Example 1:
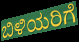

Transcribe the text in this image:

ಬಿಳಿಯರಿಗೆ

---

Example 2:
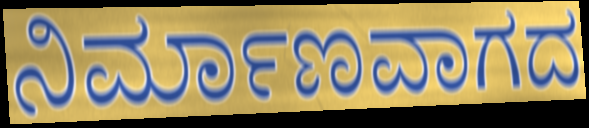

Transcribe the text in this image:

ನಿರ್ಮಾಣವಾಗದ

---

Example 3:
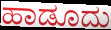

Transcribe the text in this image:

ಹಾಡೂದು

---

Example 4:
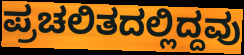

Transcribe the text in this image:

ಪ್ರಚಲಿತದಲ್ಲಿದ್ದವು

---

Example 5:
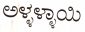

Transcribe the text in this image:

ಅಳ್ಳಳ್ಳಾಯಿ